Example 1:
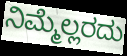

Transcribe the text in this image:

ನಿಮ್ಮೆಲ್ಲರದು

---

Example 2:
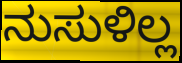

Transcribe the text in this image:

ನುಸುಳಿಲ್ಲ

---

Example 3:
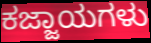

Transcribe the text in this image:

ಕಜ್ಜಾಯಗಳು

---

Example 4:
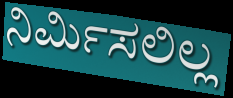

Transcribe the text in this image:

ನಿರ್ಮಿಸಲಿಲ್ಲ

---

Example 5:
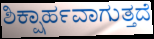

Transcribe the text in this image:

ಶಿಕ್ಷಾರ್ಹವಾಗುತ್ತದೆ